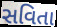
સવિતા